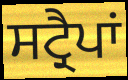
ਸਟ੍ਰੈਪਾਂ